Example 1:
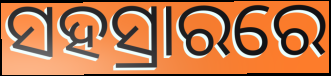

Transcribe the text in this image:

ସହସ୍ରାରରେ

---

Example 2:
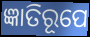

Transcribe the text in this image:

ଜ୍ଞାତିରୂପେ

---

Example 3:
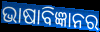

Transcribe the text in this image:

ଭାଷାବିଜ୍ଞାନର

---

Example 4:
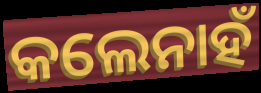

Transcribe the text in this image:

କଲେନାହଁ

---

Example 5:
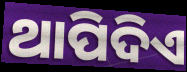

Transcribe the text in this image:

ଥାପିଦିଏ